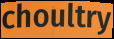
choultry